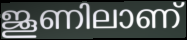
ജൂണിലാണ്